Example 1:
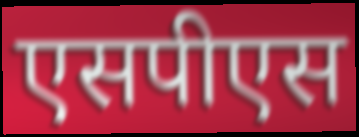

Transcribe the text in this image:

एसपीएस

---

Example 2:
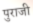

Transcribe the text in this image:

पुराजी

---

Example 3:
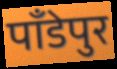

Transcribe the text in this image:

पाँडेपुर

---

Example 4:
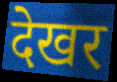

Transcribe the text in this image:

देखर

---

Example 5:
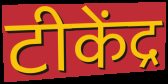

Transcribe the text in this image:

टीकेंद्र